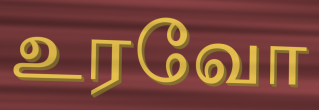
உரவோ